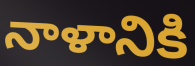
నాళానికి